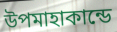
উপমাহাকান্ডে